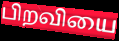
பிறவியை